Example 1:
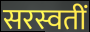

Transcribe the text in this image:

सरस्वतीं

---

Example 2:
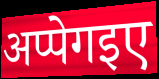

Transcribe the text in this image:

अप्पेगइए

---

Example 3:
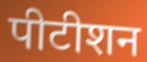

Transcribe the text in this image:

पीटीशन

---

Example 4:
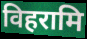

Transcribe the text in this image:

विहरामि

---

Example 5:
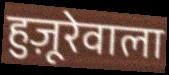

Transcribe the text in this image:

हुज़ूरेवाला